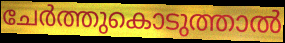
ചേർത്തുകൊടുത്താൽ